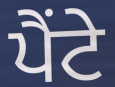
ਪੈਂਟੇ